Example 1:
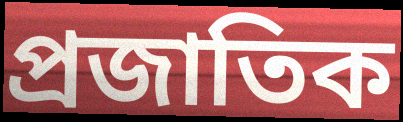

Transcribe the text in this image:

প্ৰজাতিক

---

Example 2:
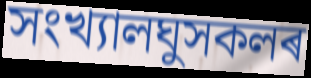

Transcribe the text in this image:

সংখ্যালঘুসকলৰ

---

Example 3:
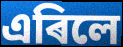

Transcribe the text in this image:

এৰিলে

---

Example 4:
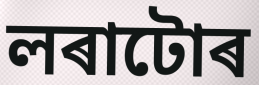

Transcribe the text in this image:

লৰাটোৰ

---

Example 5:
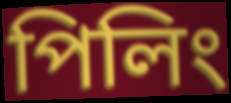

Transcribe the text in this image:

পিলিং